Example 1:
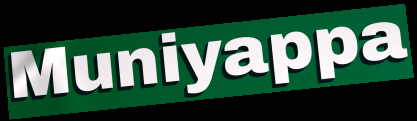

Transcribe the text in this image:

Muniyappa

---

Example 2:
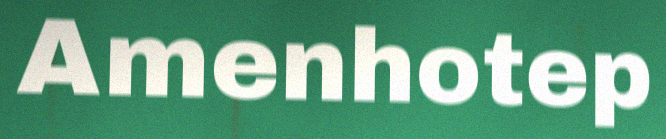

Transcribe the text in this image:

Amenhotep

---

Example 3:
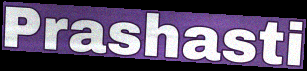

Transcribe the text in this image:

Prashasti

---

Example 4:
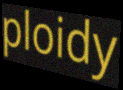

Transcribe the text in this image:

ploidy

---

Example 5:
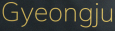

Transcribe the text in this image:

Gyeongju